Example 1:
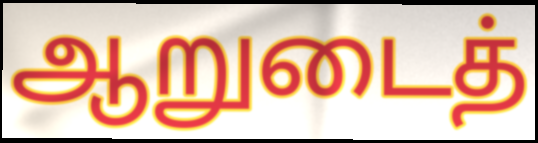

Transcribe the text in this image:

ஆறுடைத்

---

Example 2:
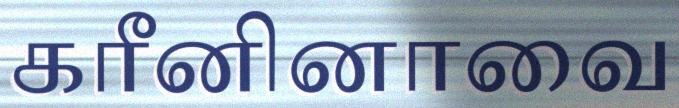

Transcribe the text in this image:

கரீனினாவை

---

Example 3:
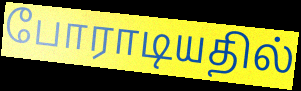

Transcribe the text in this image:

போராடியதில்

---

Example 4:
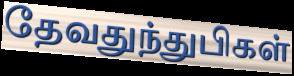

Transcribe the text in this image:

தேவதுந்துபிகள்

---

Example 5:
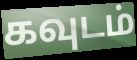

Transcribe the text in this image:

கவுடம்